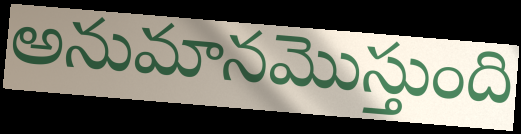
అనుమానమొస్తుంది